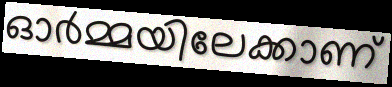
ഓർമ്മയിലേക്കാണ്